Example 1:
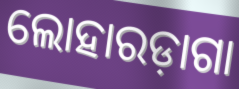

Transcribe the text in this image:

ଲୋହାରଡ଼ାଗା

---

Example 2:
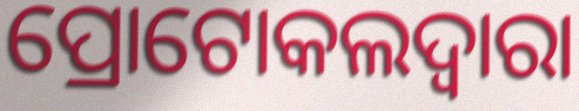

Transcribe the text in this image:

ପ୍ରୋଟୋକଲଦ୍ୱାରା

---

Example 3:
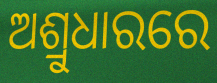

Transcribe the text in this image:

ଅଶ୍ରୁଧାରରେ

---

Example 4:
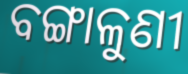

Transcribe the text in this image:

ବଙ୍ଗାଳୁଣୀ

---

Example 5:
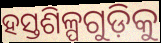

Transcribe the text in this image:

ହସ୍ତଶିଳ୍ପଗୁଡ଼ିକୁ